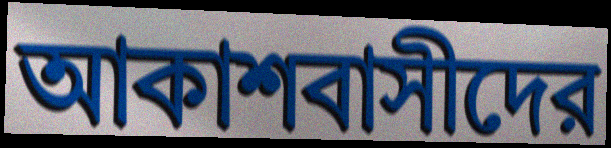
আকাশবাসীদের